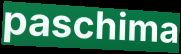
paschima